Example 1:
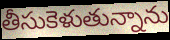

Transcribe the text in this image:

తీసుకెళుతున్నాను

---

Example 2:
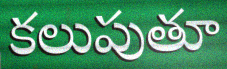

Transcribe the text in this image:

కలుపుతూ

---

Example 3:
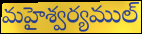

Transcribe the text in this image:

మహైశ్వర్యముల్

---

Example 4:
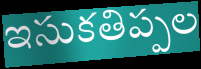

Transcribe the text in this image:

ఇసుకతిప్పల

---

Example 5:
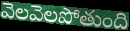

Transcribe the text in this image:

వెలవెలపోతుంది